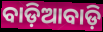
ବାଡ଼ିଆବାଡ଼ି